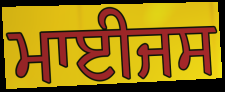
ਮਾਈਜਸ